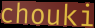
chouki